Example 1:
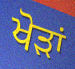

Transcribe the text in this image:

ਖੋੜਾਂ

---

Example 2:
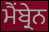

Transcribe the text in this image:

ਮੈਂਬ੍ਰੇਨ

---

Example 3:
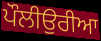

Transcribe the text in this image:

ਪੌਲੀਉਰੀਆ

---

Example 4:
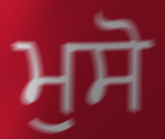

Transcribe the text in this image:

ਮੁਸੋ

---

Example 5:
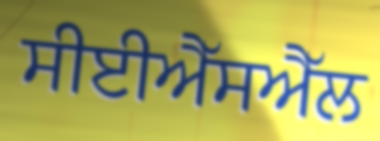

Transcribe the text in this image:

ਸੀਈਐੱਸਐੱਲ